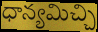
ధాన్యమిచ్చి